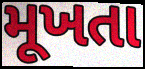
મૂખતા